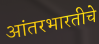
आंतरभारतीचे